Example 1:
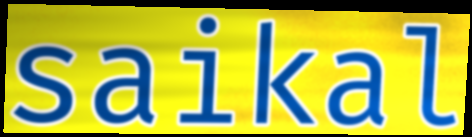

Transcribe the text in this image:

saikal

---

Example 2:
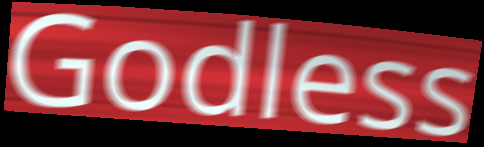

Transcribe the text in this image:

Godless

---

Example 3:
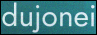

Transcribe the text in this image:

dujonei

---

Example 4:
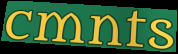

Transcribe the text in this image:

cmnts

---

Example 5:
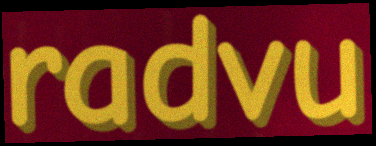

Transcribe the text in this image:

radvu